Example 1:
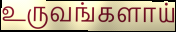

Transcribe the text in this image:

உருவங்களாய்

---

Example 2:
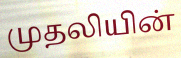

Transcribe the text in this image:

முதலியின்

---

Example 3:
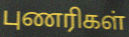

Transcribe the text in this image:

புணரிகள்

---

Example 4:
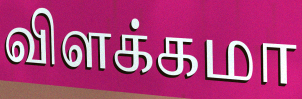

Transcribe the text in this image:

விளக்கமா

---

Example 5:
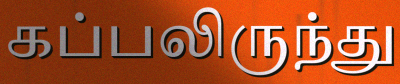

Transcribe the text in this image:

கப்பலிருந்து